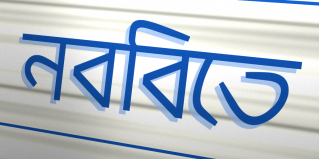
নববিতে